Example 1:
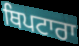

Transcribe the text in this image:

ਥਿਪਟਾਰਾ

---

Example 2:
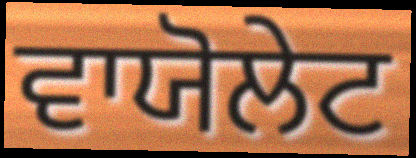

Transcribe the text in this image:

ਵਾਯੋਲੇਟ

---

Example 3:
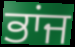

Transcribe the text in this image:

ਭਾਂਜ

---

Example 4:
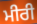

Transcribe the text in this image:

ਮੀਰੀ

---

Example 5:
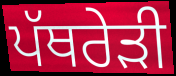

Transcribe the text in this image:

ਪੱਥਰੇੜੀ